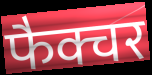
फैक्चर